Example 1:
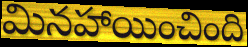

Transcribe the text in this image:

మినహాయించింది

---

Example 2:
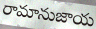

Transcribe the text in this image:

రామానుజాయ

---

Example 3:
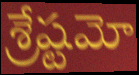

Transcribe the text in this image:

శ్రేష్టమో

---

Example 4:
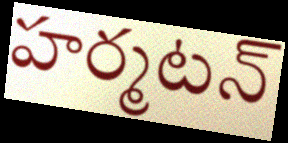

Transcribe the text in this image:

హర్మటన్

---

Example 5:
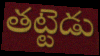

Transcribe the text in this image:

తట్టెడు